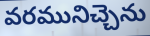
వరమునిచ్చెను